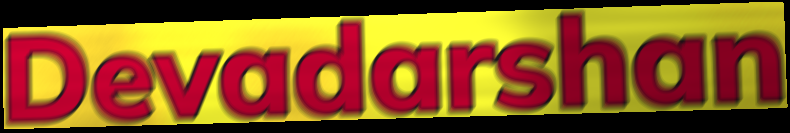
Devadarshan